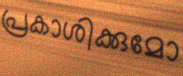
പ്രകാശിക്കുമോ